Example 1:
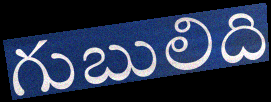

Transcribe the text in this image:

గుబులిది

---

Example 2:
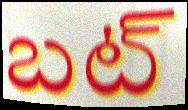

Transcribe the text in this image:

బట్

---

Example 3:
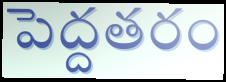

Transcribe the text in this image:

పెద్దతరం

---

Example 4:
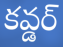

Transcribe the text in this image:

కవ్డర్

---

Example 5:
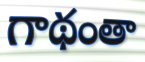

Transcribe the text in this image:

గాథంతా